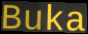
Buka